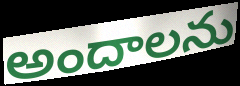
అందాలను